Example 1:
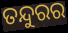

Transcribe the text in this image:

ତନ୍ଦୁରର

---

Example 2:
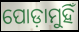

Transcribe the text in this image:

ପୋଡ଼ାମୁହିଁ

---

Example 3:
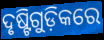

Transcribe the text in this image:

ଦୃଷ୍ଟିଗୁଡ଼ିକରେ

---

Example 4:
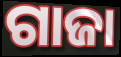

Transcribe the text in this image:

ଗାଜା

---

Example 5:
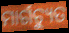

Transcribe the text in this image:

ମାର୍ଗଚ୍ୟୁତ